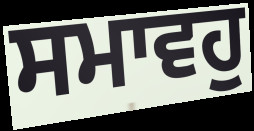
ਸਮਾਵਹੁ